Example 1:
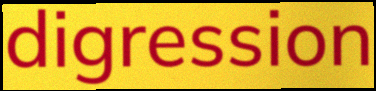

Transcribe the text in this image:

digression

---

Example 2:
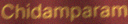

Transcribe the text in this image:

Chidamparam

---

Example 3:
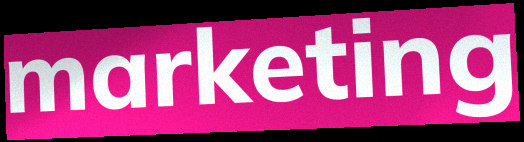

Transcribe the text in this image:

marketing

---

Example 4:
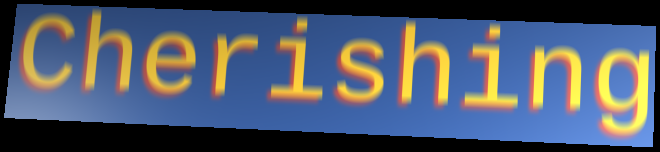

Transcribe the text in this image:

Cherishing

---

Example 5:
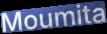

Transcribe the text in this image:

Moumita